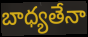
బాధ్యతేనా